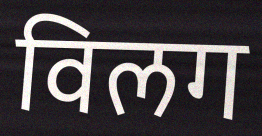
विलग